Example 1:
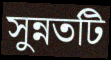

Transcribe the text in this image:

সুন্নতটি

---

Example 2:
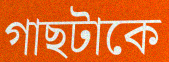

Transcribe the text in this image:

গাছটাকে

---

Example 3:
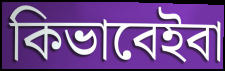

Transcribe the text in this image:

কিভাবেইবা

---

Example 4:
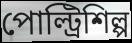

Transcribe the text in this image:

পোল্ট্রিশিল্প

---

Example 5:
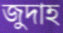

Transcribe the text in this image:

জুদাহ